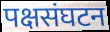
पक्षसंघटन